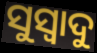
ସୁସ୍ଵାଦୁ